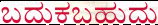
ಬದುಕಬಹುದು